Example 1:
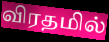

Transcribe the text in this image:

விரதமில்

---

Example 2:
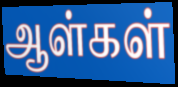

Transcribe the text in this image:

ஆள்கள்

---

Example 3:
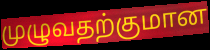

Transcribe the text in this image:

முழுவதற்குமான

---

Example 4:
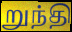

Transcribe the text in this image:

றுந்தி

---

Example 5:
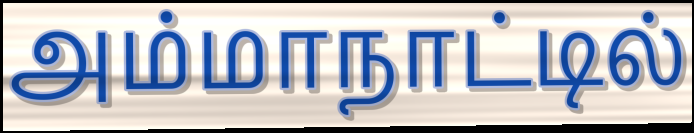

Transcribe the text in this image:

அம்மாநாட்டில்